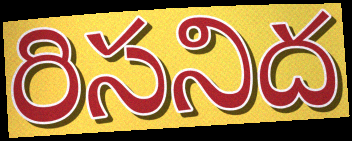
రిసనిద